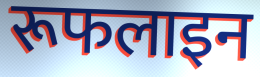
रूफलाइन